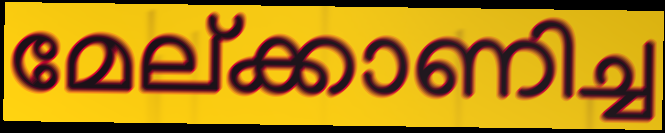
മേല്ക്കാണിച്ച